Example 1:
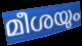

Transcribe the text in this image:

മീശയും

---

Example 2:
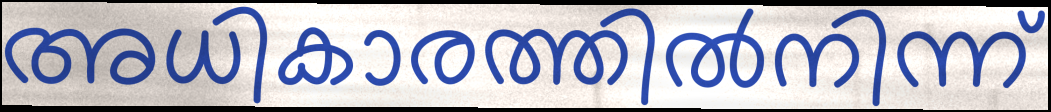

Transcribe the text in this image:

അധികാരത്തിൽനിന്ന്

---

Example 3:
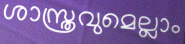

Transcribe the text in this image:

ശാസ്ത്രവുമെല്ലാം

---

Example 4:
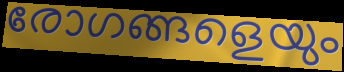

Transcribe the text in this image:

രോഗങ്ങളെയും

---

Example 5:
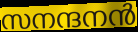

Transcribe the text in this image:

സനന്ദനൻ